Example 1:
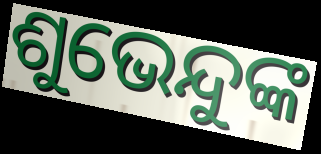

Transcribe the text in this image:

ଶୁଭେନ୍ଦୁଙ୍କ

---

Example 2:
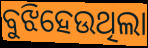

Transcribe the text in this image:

ବୁଝିହେଉଥିଲା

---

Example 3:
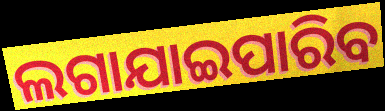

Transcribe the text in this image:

ଲଗାଯାଇପାରିବ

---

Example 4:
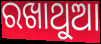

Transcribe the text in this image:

ରଖାଥୁଆ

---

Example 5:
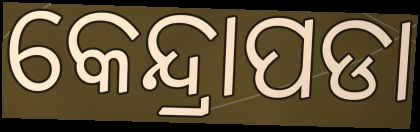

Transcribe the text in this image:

କେନ୍ଦ୍ରାପଡା